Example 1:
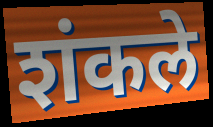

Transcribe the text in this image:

शंकले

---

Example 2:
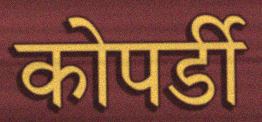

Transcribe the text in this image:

कोपर्डी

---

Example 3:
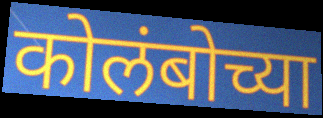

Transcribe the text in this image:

कोलंबोच्या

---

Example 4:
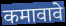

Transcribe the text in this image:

कमावावे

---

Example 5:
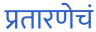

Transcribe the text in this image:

प्रतारणेचं